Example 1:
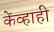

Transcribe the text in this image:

केंव्हाही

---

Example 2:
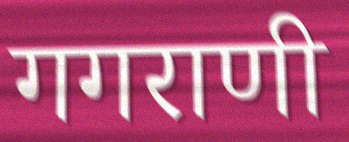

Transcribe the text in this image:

गगराणी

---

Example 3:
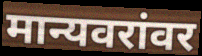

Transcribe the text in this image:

मान्यवरांवर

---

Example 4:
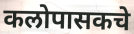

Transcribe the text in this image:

कलोपासकचे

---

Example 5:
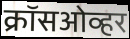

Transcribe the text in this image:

क्रॉसओव्हर